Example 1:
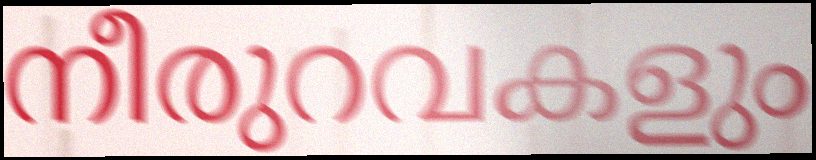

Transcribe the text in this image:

നീരുറവകളും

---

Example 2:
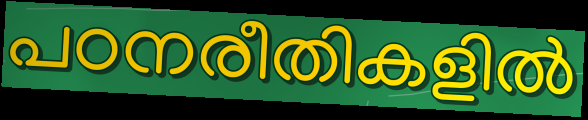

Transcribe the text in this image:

പഠനരീതികളിൽ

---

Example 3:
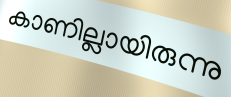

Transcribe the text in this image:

കാണില്ലായിരുന്നു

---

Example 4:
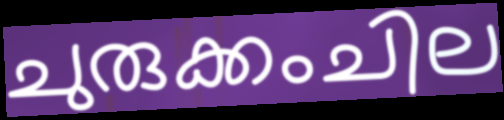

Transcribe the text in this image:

ചുരുക്കംചില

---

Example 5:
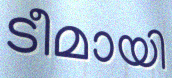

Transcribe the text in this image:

ടീമായി